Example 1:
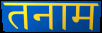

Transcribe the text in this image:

तनाम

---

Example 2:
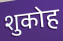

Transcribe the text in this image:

शुकोह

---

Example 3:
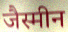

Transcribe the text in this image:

जैस्मीन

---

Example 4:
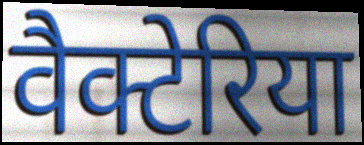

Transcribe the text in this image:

वैक्टेरिया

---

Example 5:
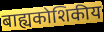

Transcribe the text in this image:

बाह्यकोशिकीय